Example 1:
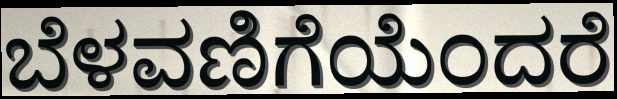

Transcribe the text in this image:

ಬೆಳವಣಿಗೆಯೆಂದರೆ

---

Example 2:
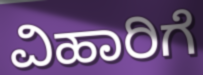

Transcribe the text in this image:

ವಿಹಾರಿಗೆ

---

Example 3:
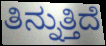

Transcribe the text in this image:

ತಿನ್ನುತ್ತಿದೆ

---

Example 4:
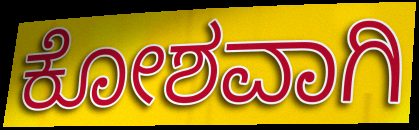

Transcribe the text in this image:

ಕೋಶವಾಗಿ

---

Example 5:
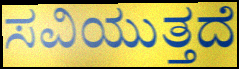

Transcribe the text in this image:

ಸವಿಯುತ್ತದೆ